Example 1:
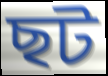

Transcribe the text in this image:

ছট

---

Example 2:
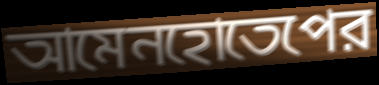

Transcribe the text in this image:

আমেনহোতেপের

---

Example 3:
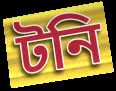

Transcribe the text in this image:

টনি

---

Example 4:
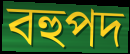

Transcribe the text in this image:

বহুপদ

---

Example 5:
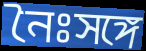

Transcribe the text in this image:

নৈঃসঙ্গে